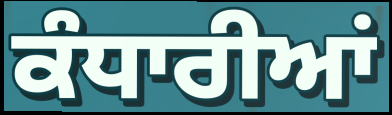
ਕੰਧਾਰੀਆਂ